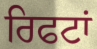
ਰਿਫਟਾਂ